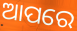
ଆପରେ